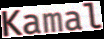
Kamal